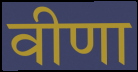
वीणा